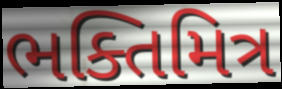
ભક્તિમિત્ર